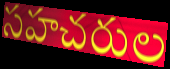
సహచరుల